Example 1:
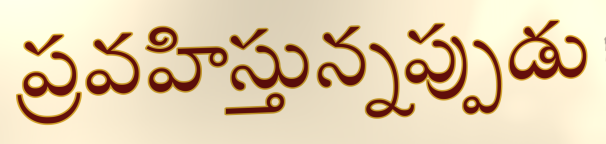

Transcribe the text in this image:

ప్రవహిస్తున్నప్పుడు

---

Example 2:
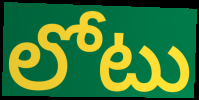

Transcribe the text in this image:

లోటు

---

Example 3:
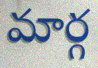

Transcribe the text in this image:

మార్గ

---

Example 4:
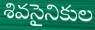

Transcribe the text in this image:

శివసైనికుల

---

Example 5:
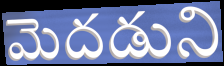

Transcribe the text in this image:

మెదడుని